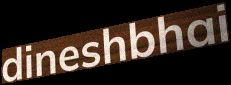
dineshbhai